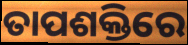
ତାପଶକ୍ତିରେ